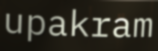
upakram